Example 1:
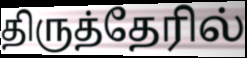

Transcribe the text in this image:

திருத்தேரில்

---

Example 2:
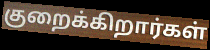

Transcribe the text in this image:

குறைக்கிறார்கள்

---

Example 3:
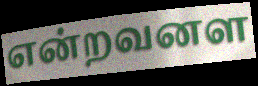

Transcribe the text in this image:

என்றவனள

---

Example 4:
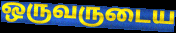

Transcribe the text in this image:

ஒருவருடைய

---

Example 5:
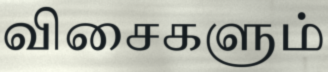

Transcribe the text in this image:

விசைகளும்